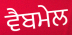
ਵੈਬਮੇਲ